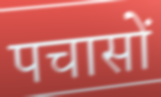
पचासों